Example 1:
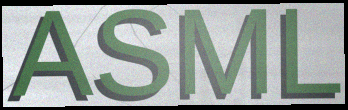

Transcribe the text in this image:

ASML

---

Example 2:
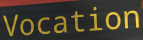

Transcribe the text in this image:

Vocation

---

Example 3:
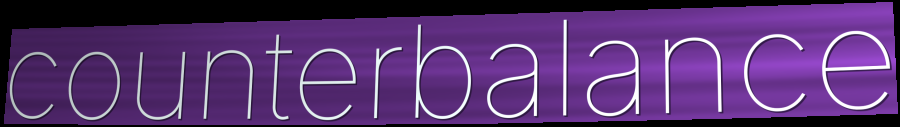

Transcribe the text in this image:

counterbalance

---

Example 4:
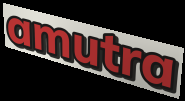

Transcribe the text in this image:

amutra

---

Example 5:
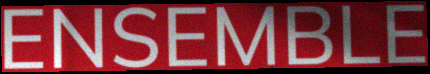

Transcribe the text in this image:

ENSEMBLE